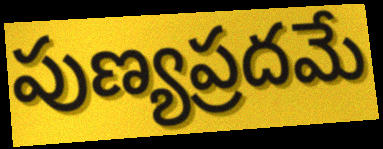
పుణ్యప్రదమే